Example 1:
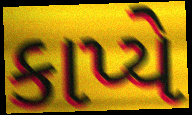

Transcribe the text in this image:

કાપ્યે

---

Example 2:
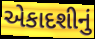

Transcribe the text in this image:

એકાદશીનું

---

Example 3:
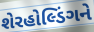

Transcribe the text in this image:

શેરહોલ્ડિંગને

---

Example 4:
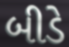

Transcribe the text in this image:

બીડે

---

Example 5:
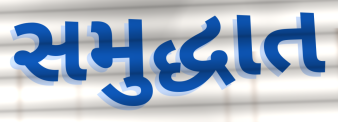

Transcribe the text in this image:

સમુદ્ધાત